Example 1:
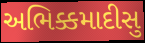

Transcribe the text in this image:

અભિક્કમાદીસુ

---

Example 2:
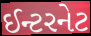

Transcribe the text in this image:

ઈન્ટરનેટ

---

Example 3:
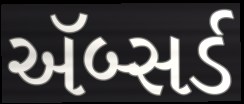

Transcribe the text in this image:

ઍબ્સર્ડ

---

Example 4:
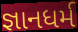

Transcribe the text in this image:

જ્ઞાનધર્મ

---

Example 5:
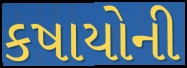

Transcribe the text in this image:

કષાયોની